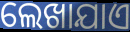
ଲେଖାଯାଏ